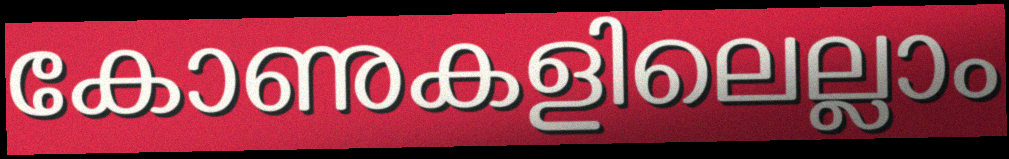
കോണുകളിലെല്ലാം